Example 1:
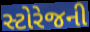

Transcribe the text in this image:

સ્ટોરેજની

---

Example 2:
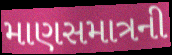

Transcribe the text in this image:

માણસમાત્રની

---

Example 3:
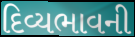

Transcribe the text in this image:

દિવ્યભાવની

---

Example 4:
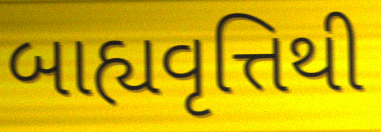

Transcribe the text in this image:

બાહ્યવૃત્તિથી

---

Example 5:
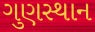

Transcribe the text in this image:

ગુણસ્થાન